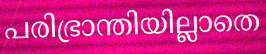
പരിഭ്രാന്തിയില്ലാതെ